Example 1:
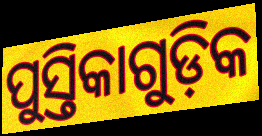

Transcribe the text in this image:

ପୁସ୍ତିକାଗୁଡ଼ିକ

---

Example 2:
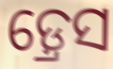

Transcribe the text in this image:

ଡ଼୍ରେସ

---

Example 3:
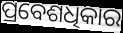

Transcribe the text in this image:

ପ୍ରବେଶଧିକାର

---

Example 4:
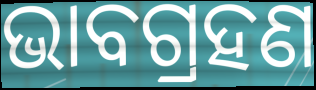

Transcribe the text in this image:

ଭାବଗ୍ରହଣ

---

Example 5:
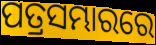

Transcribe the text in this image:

ପତ୍ରସମ୍ଭାରରେ